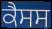
ਕੈਸਸ